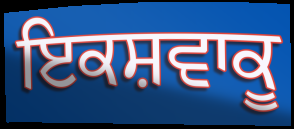
ਇਕਸ਼ਵਾਕੂ